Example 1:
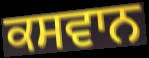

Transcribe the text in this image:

ਕਸਵਾਨ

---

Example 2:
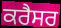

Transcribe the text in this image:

ਕਰੈਸਰ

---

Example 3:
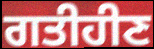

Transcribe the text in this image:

ਗਤੀਹੀਣ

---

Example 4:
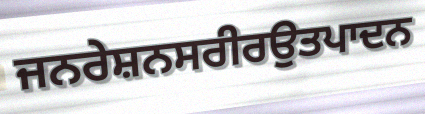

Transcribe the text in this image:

ਜਨਰੇਸ਼ਨਸਰੀਰਉਤਪਾਦਨ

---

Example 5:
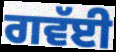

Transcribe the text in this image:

ਗਵੱਈ